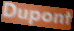
Dupont